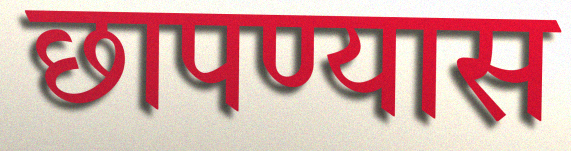
छापण्यास